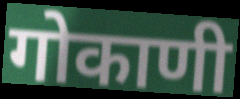
गोकाणी